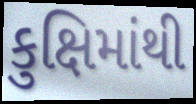
કુક્ષિમાંથી